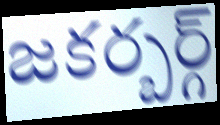
జకర్బర్గ్